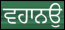
ਵਹਾਨਉ